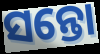
ସନ୍ତୋ